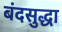
बंदसुद्धा